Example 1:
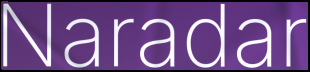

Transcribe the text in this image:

Naradar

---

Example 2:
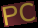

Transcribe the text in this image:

PC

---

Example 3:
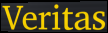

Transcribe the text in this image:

Veritas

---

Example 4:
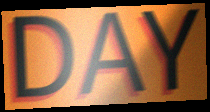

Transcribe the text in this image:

DAY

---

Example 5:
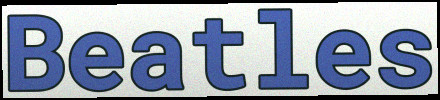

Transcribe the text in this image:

Beatles